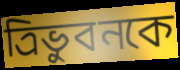
ত্রিভুবনকে